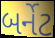
બર્નેટ